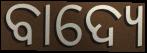
ବାଦ୍ୟେ